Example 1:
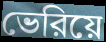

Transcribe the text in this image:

ভেরিয়ে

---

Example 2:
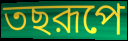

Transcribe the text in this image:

তছরূপে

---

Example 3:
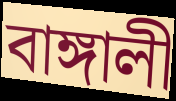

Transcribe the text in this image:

বাঙ্গালী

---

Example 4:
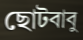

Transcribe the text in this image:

ছোটবাবু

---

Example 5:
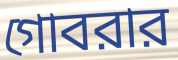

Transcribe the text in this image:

গোবরার